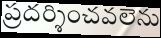
ప్రదర్శించవలెను